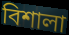
বিশালা